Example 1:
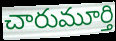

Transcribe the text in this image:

చారుమూర్తి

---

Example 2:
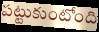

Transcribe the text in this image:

పట్టుకుంటోంది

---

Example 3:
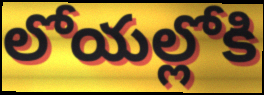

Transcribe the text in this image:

లోయల్లోకి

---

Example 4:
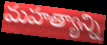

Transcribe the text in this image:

మహత్యాన్ని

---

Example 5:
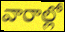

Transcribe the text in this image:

వారాల్లో